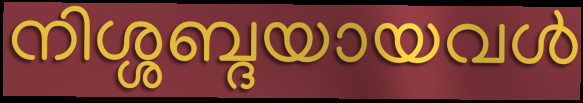
നിശ്ശബ്ദയായവൾ